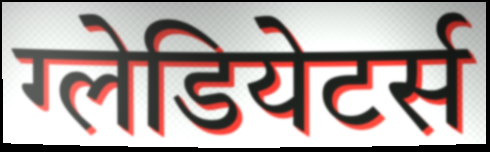
ग्लेडियेटर्स